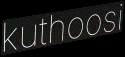
kuthoosi